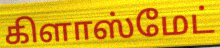
கிளாஸ்மேட்